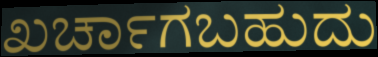
ಖರ್ಚಾಗಬಹುದು